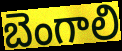
బెంగాలి